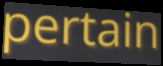
pertain